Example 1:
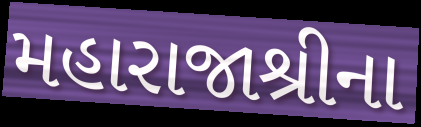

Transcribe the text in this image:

મહારાજાશ્રીના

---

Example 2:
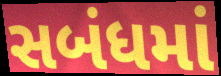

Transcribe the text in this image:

સબંધમાં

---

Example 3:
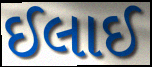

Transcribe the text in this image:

ઈલાઈ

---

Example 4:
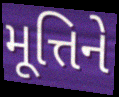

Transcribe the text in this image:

મૂત્તિને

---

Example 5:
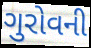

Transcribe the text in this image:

ગુરોવની